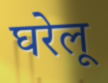
घरेलू